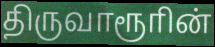
திருவாரூரின்